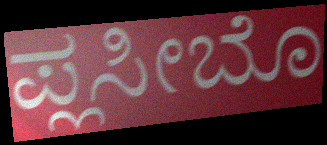
ಪ್ಲಸೀಬೊ